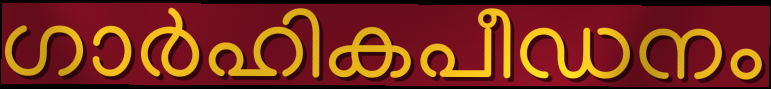
ഗാർഹികപീഡനം